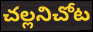
చల్లనిచోట